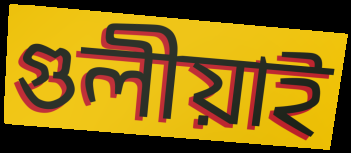
গুলীয়াই